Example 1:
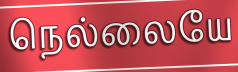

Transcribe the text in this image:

நெல்லையே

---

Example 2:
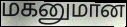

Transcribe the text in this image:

மகனுமான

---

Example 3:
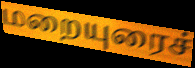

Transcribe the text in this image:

மறையுரைச்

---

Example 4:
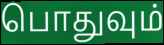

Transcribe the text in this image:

பொதுவும்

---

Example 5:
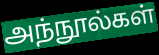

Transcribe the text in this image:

அந்நூல்கள்